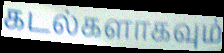
கடல்களாகவும்